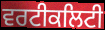
ਵਰਟੀਕਲਿਟੀ